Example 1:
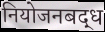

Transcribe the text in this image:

नियोजनबद्ध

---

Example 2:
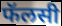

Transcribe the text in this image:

फॅलसी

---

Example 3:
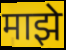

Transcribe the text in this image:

माझे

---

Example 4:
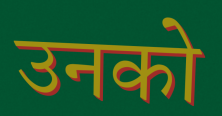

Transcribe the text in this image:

उनको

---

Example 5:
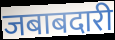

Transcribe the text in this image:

जबाबदारी